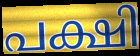
പക്ഷി